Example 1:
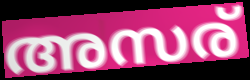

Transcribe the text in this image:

അസര്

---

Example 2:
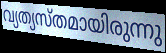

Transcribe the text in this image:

വ്യത്യസ്തമായിരുന്നു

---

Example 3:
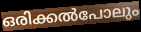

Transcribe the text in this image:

ഒരിക്കൽപോലും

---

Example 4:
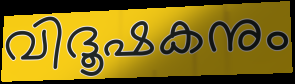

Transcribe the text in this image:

വിദൂഷകനും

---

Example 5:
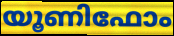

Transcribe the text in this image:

യൂണിഫോം